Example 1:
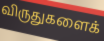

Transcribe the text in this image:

விருதுகளைக்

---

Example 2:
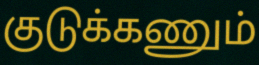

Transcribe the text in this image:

குடுக்கணும்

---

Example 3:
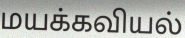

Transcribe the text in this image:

மயக்கவியல்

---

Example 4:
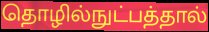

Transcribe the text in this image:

தொழில்நுட்பத்தால்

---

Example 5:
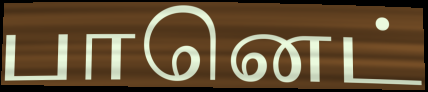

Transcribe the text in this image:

பானெட்